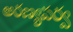
అరణ్యపర్వ